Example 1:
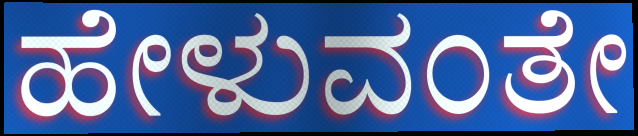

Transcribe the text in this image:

ಹೇಳುವಂತೇ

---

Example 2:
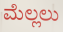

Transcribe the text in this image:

ಮೆಲ್ಲಲು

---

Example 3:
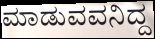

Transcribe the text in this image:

ಮಾಡುವವನಿದ್ದ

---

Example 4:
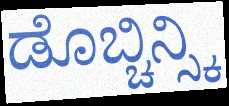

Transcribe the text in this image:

ಡೊಬ್ಚಿನ್ಸ್ಕಿ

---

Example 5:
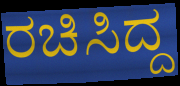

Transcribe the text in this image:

ರಚಿಸಿದ್ದ